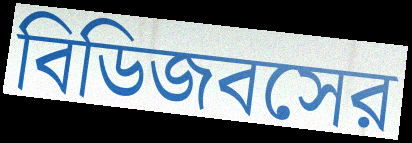
বিডিজবসের